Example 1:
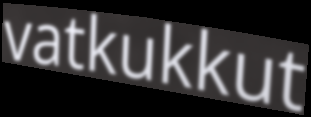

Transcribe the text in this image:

vatkukkut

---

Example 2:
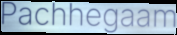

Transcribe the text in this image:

Pachhegaam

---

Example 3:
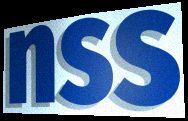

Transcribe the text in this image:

nss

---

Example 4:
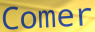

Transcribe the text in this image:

Comer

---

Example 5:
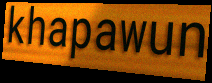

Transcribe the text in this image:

khapawun